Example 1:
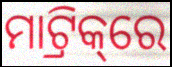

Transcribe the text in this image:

ମାଟ୍ରିକ୍‌ରେ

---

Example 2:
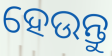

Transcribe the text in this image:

ହେଉନ୍ତୁ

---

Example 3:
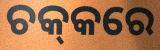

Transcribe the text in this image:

ଚକ୍‌କରେ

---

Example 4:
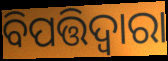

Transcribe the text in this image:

ବିପତ୍ତିଦ୍ୱାରା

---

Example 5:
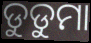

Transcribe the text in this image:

ଡୁଡୁମା